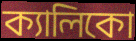
ক্যালিকো